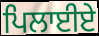
ਪਿਲਾਈਏ